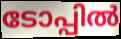
ടോപ്പിൽ